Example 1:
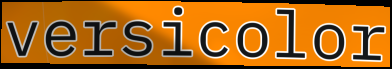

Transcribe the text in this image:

versicolor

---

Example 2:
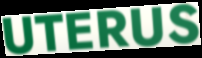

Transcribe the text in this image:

UTERUS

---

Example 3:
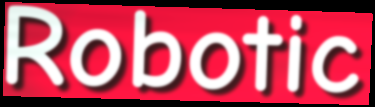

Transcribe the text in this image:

Robotic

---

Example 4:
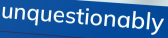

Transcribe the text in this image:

unquestionably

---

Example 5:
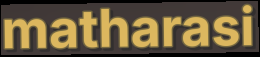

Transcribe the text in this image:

matharasi